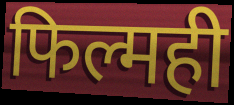
फिल्मही